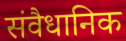
संवैधानिक